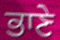
ਭਾਣੇ